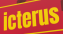
icterus